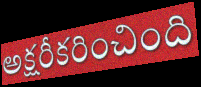
అక్షరీకరించింది